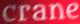
crane